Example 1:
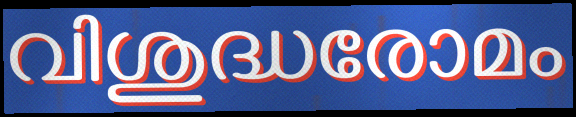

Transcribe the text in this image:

വിശുദ്ധരോമം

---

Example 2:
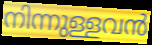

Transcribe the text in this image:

നിന്നുള്ളവൻ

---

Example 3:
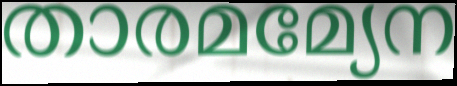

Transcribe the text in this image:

താരമമ്യേന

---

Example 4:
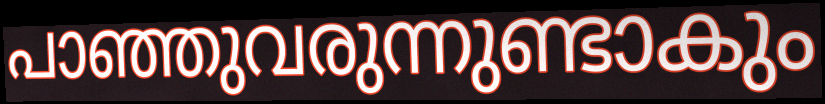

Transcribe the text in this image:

പാഞ്ഞുവരുന്നുണ്ടാകും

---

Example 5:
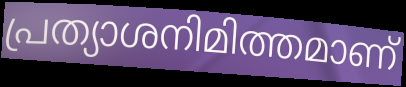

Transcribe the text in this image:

പ്രത്യാശനിമിത്തമാണ്